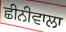
ਛੀਨੀਵਾਲਾ